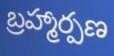
బ్రహ్మార్పణ